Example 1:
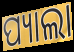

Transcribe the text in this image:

ପ୍ୟାଲା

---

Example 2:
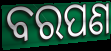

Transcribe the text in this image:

ବରପଣ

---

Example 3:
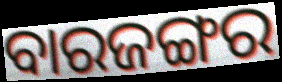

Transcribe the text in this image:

ବାରଜଙ୍ଗର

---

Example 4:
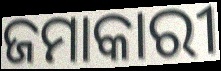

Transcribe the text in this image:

ଜମାକାରୀ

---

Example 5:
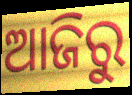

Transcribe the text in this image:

ଆଜିରୁ